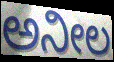
ಅನೀಲ